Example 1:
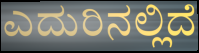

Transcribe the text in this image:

ಎದುರಿನಲ್ಲಿದೆ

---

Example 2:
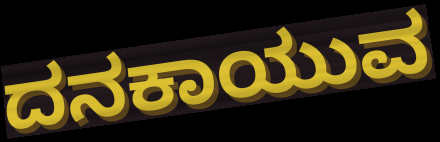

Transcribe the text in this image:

ದನಕಾಯುವ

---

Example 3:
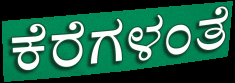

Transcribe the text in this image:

ಕೆರೆಗಳಂತೆ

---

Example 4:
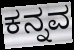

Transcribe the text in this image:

ಕನ್ನವ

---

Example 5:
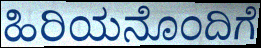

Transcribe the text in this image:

ಹಿರಿಯನೊಂದಿಗೆ